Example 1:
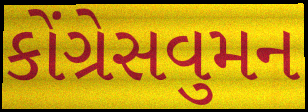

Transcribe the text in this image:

કોંગ્રેસવુમન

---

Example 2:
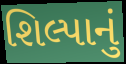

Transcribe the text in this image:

શિલ્પાનું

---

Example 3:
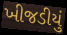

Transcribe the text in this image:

ખીજડીયું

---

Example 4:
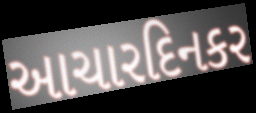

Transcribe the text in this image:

આચારદિનકર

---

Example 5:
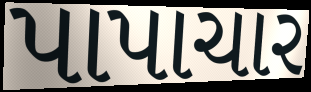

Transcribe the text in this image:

પાપાચાર